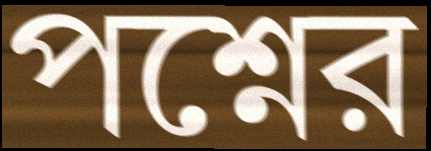
পশ্নের